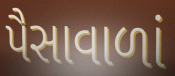
પૈસાવાળાં